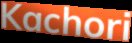
Kachori